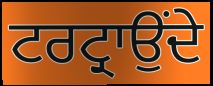
ਟਰਟ੍ਰਾਉਂਦੇ